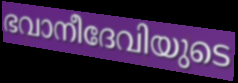
ഭവാനീദേവിയുടെ